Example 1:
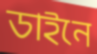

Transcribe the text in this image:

ডাইনে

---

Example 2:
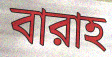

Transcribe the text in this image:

বারাহ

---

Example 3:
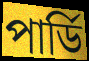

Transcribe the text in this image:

পার্ডি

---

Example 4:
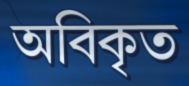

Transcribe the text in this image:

অবিকৃত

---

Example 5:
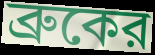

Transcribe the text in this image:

ব্রুকের